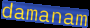
damanam